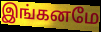
இங்கனமே